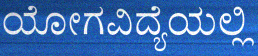
ಯೋಗವಿದ್ಯೆಯಲ್ಲಿ